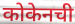
कोकेनची